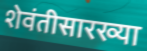
शेवंतीसारख्या